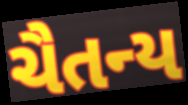
ચૈતન્ય